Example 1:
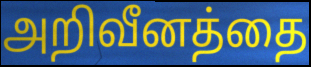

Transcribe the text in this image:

அறிவீனத்தை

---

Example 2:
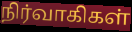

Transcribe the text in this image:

நிர்வாகிகள்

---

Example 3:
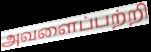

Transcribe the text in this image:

அவளைப்பற்றி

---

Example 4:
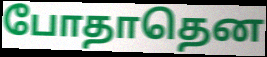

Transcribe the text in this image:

போதாதென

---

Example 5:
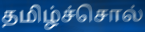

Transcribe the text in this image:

தமிழ்ச்சொல்